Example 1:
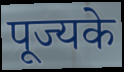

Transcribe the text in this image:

पूज्यके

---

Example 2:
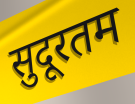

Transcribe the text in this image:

सुदूरतम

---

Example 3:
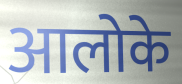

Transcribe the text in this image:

आलोके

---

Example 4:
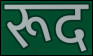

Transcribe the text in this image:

रूद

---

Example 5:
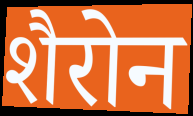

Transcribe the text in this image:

शैरोन